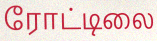
ரோட்டிலை